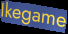
Ikegame